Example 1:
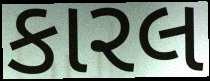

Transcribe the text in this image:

કારલ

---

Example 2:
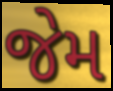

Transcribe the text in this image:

જેમ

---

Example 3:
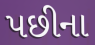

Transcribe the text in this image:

પછીના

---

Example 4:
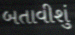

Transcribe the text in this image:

બતાવીશું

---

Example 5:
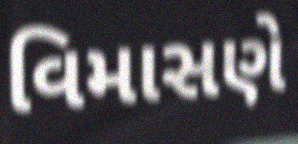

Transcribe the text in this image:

વિમાસણે